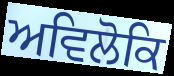
ਅਵਿਲੋਕਿ